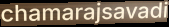
chamarajsavadi